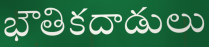
భౌతికదాడులు